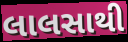
લાલસાથી